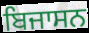
ਬਿਜਾਸਨ